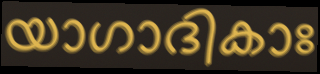
യാഗാദികാഃ